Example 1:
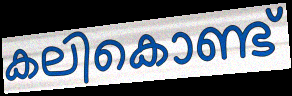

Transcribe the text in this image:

കലികൊണ്ട്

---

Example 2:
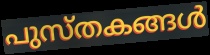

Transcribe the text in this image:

പുസ്തകങ്ങൾ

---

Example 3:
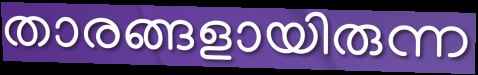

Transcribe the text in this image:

താരങ്ങളായിരുന്ന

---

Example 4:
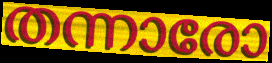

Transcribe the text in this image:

തന്നാരോ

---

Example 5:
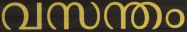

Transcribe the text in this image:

വസന്തം